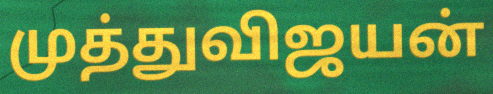
முத்துவிஜயன்